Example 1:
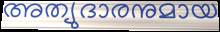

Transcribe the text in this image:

അത്യുദാരനുമായ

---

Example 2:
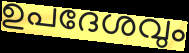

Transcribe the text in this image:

ഉപദേശവും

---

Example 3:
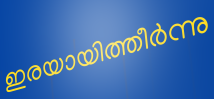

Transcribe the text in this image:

ഇരയായിത്തീർന്നു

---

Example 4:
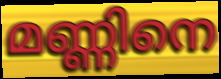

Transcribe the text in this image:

മണ്ണിനെ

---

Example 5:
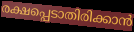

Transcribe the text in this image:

രക്ഷപ്പെടാതിരിക്കാൻ